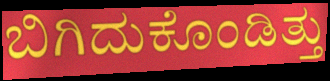
ಬಿಗಿದುಕೊಂಡಿತ್ತು